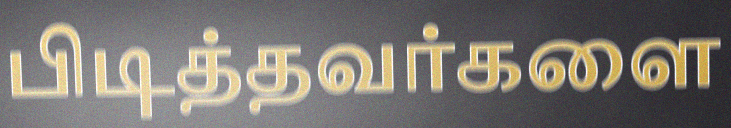
பிடித்தவர்களை